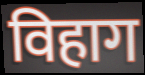
विहाग